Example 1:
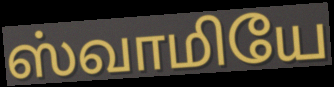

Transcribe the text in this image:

ஸ்வாமியே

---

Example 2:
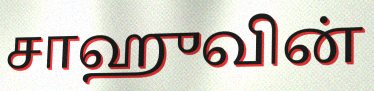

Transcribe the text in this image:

சாஹுவின்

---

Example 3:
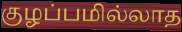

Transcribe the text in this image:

குழப்பமில்லாத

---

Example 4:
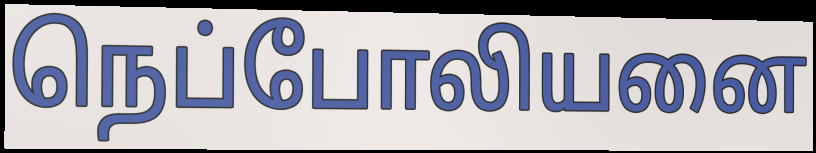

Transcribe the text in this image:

நெப்போலியனை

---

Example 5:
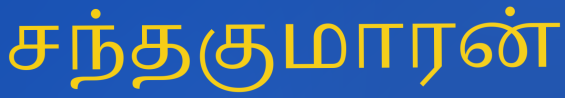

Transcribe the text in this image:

சந்தகுமாரன்